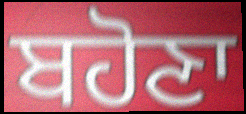
ਬਹੋਣਾ